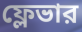
ফ্লেভার